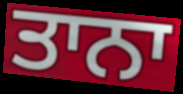
ਤਾਨਾ